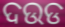
ଦଉଡ